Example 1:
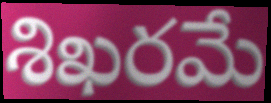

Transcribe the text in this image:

శిఖరమే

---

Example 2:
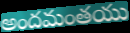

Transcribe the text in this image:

అందమంతయు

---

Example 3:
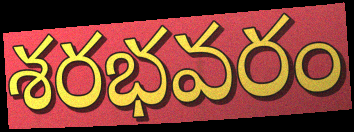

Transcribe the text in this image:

శరభవరం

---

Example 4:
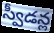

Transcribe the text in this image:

స్వీడన్ల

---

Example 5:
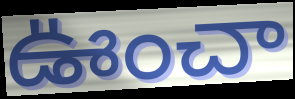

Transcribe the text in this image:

ఊంచా